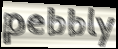
pebbly